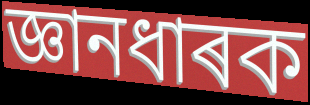
জ্ঞানধাৰক